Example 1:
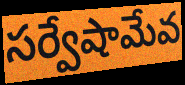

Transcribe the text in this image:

సర్వేషామేవ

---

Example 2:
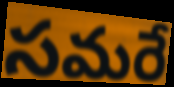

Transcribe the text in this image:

సమరే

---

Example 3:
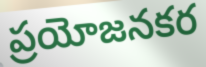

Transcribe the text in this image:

ప్రయోజనకర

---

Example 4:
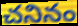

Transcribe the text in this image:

చనినం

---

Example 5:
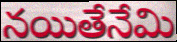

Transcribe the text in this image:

నయితేనేమి